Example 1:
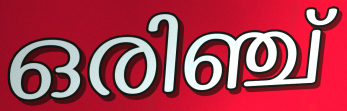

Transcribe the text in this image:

ഒരിഞ്ച്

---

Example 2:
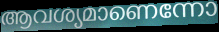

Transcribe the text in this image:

ആവശ്യമാണെന്നോ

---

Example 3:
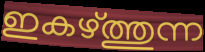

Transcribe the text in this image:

ഇകഴ്ത്തുന്ന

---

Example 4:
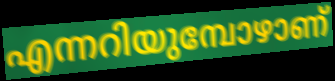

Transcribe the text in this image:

എന്നറിയുമ്പോഴാണ്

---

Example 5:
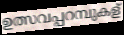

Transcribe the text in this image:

ഉത്സവപ്പറമ്പുകള്